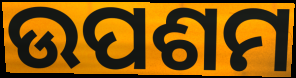
ଉପଶମ